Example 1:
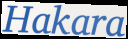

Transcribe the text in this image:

Hakara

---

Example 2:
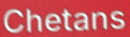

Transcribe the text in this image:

Chetans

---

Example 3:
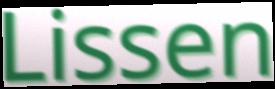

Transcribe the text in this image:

Lissen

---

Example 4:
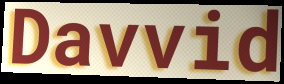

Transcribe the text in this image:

Davvid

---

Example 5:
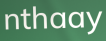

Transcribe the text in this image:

nthaay